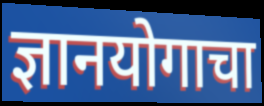
ज्ञानयोगाचा